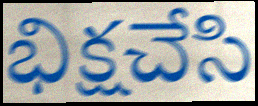
భిక్షచేసి